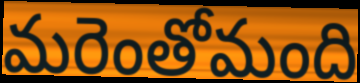
మరెంతోమంది